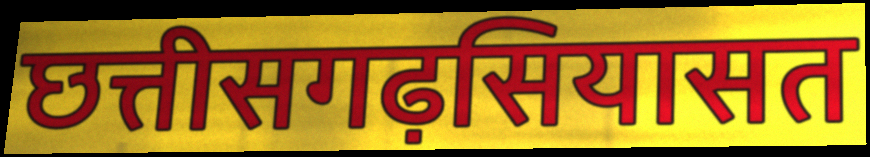
छत्तीसगढ़सियासत